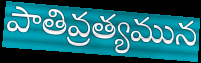
పాతివ్రత్యమున